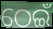
ଠେଇଁ